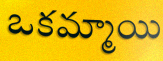
ఒకమ్మాయి